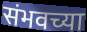
संभवच्या